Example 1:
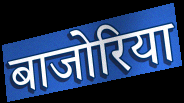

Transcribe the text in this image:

बाजोरिया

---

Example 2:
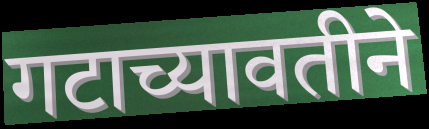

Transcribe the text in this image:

गटाच्यावतीने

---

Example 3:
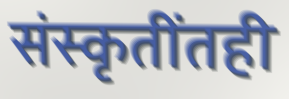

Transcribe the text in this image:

संस्कृतींतही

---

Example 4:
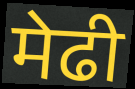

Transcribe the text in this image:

मेढी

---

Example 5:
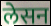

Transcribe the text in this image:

लेसन